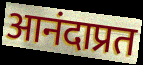
आनंदाप्रत